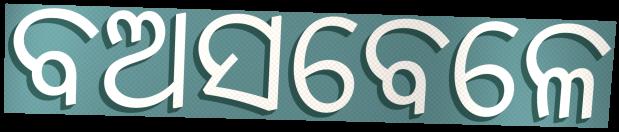
ବଅସବେଳେ